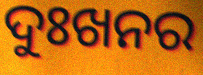
ଦୁଃଖନର